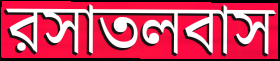
রসাতলবাস